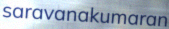
saravanakumaran